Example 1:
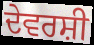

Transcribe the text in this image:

ਦੇਵਰਸ਼ੀ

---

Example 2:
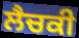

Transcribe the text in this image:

ਲੈਚਕੀ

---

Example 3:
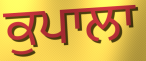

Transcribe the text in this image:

ਕੁਪਾਲਾ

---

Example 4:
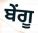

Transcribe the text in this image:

ਬੇਂਗੂ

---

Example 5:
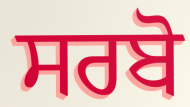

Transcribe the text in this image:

ਸਰਬੋ